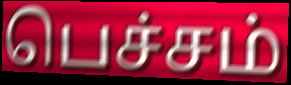
பெச்சம்